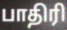
பாதிரி